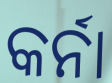
କର୍ନା